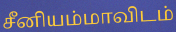
சீனியம்மாவிடம்